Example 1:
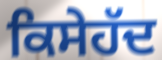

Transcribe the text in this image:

ਕਿਸੇਹੱਦ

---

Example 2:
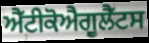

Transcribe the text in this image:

ਐਂਟੀਕੋਐਗੂਲੈਂਟਸ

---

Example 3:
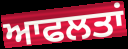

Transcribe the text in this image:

ਆਫਲਤਾਂ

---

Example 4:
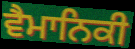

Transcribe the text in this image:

ਵੈਮਾਨਿਕੀ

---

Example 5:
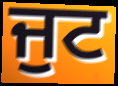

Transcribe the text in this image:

ਜੁਟ